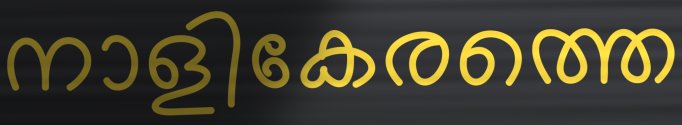
നാളികേരത്തെ